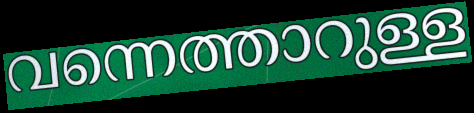
വന്നെത്താറുള്ള